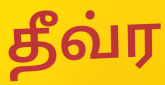
தீவ்ர